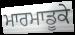
ਮਾਰਮਾਡੂਕੇ